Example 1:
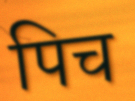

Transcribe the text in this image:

पिच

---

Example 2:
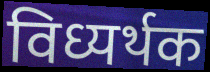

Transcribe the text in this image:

विध्यर्थक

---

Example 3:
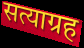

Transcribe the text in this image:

सत्याग्रह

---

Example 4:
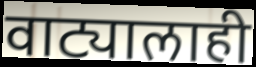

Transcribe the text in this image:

वाट्यालाही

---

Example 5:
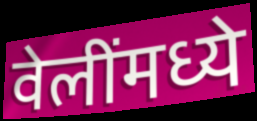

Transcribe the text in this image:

वेलींमध्ये